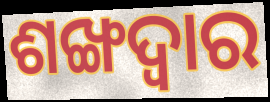
ଶଙ୍ଖଦ୍ୱାର